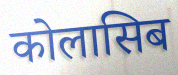
कोलासिब